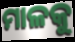
ମାଳକୁ